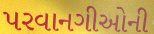
પરવાનગીઓની